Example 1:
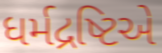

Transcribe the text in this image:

ધર્મદ્રષ્ટિએ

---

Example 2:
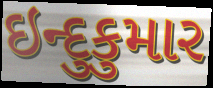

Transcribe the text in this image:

ઇન્દુકુમાર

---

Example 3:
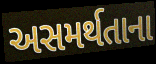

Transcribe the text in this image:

અસમર્થતાના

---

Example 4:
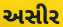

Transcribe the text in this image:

અસીર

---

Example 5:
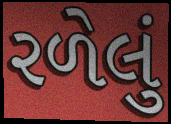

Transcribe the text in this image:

રળેલું